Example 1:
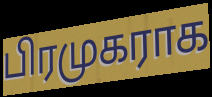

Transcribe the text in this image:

பிரமுகராக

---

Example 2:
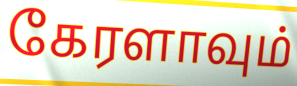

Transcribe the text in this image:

கேரளாவும்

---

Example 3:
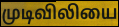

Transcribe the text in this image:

முடிவிலியை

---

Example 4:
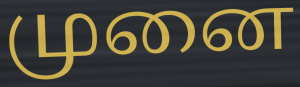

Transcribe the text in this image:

முனை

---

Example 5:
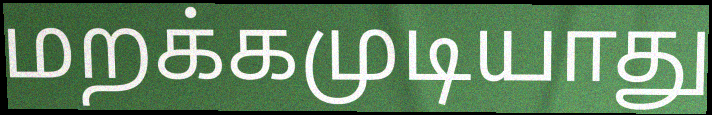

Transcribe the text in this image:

மறக்கமுடியாது